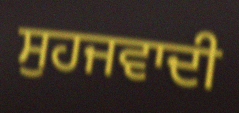
ਸੁਹਜਵਾਦੀ